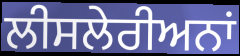
ਲੀਸਲੇਰੀਅਨਾਂ